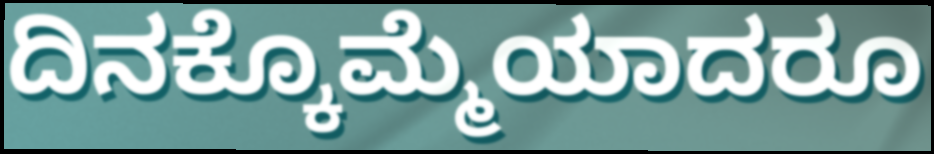
ದಿನಕ್ಕೊಮ್ಮೆಯಾದರೂ